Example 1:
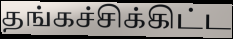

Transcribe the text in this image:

தங்கச்சிக்கிட்ட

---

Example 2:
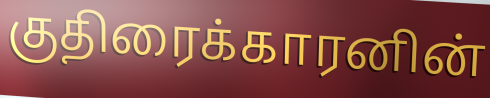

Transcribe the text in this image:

குதிரைக்காரனின்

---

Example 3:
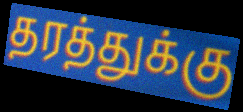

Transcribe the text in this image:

தரத்துக்கு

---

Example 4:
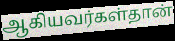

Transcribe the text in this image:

ஆகியவர்கள்தான்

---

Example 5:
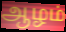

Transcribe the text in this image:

ஆழம்